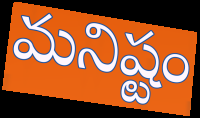
మనిష్టం